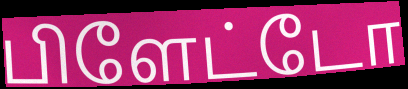
பிளேட்டோ